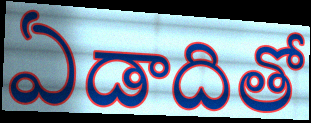
ఏడాదితో